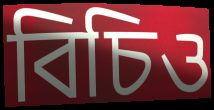
বিচিও